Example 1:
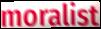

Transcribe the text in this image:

moralist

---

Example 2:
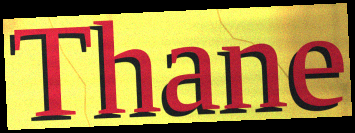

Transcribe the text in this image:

Thane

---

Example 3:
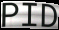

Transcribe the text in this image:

PID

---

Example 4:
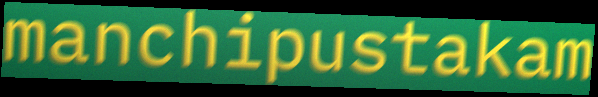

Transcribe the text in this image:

manchipustakam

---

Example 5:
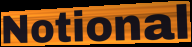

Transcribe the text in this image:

Notional